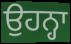
ਉਹਨ੍ਹਾ